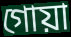
গোয়া